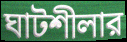
ঘাটশীলার